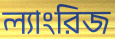
ল্যাংরিজ